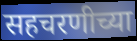
सहचरणीच्या